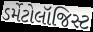
ડર્મેટોલૉજિસ્ટ